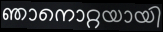
ഞാനൊറ്റയായി